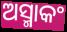
ଅସ୍ମାକଂ